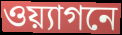
ওয়্যাগনে